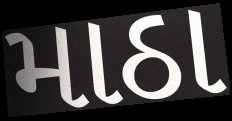
માઠા